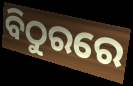
ବିଠୁରରେ